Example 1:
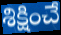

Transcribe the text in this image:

శిక్షించే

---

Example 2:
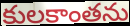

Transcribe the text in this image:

కులకాంతను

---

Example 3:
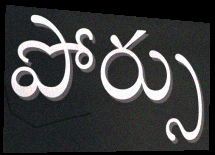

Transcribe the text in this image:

పోర్సు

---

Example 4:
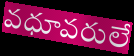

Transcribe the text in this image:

వధూవరులే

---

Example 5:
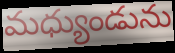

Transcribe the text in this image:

మధ్యుండును